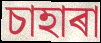
চাহাৰা